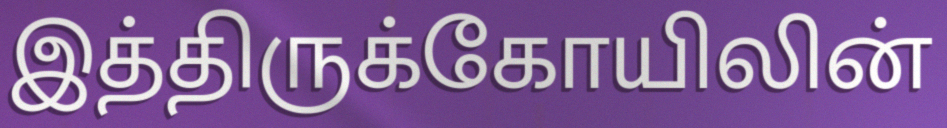
இத்திருக்கோயிலின்